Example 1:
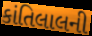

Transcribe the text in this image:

કાંતિલાલની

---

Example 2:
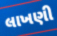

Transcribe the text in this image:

લાખણી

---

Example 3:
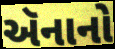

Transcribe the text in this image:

ઍનાનો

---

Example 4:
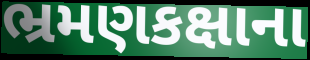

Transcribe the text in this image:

ભ્રમણકક્ષાના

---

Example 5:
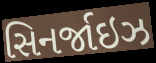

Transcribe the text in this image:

સિનર્જાઇઝ